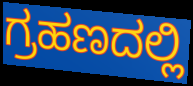
ಗ್ರಹಣದಲ್ಲಿ